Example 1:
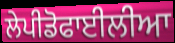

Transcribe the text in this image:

ਲੇਪੀਡੋਫਾਈਲੀਆ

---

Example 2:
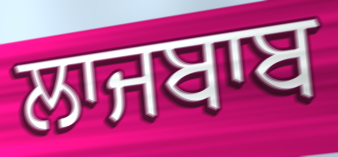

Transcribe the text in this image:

ਲਾਜਬਾਬ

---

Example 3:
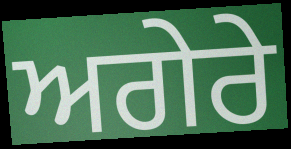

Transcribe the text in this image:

ਅਗੇਰੇ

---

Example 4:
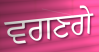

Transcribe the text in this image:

ਵਗਣਗੇ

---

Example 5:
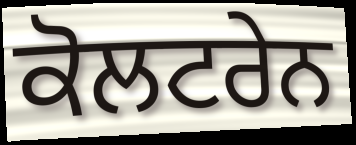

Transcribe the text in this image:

ਕੋਲਟਰੇਨ